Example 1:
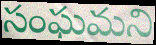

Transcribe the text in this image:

సంఘమని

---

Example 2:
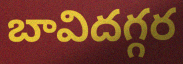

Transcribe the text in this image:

బావిదగ్గర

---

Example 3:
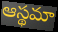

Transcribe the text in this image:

ఆస్థమా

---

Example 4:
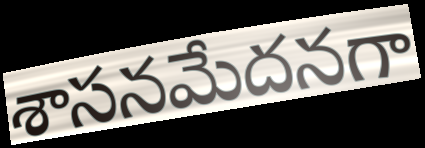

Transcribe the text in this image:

శాసనమేదనగా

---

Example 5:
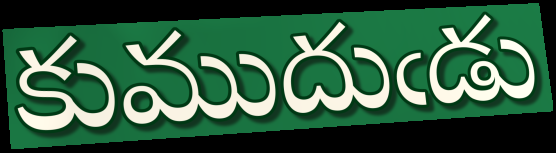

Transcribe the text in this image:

కుముదుఁడు